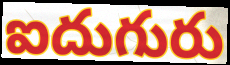
ఐదుగురు